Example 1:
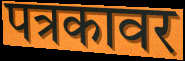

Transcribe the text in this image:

पत्रकावर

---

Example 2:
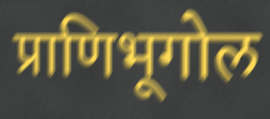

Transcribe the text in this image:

प्राणिभूगोल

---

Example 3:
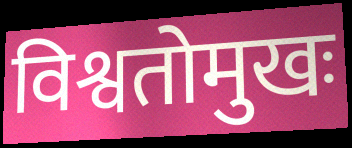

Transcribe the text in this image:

विश्वतोमुखः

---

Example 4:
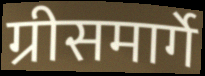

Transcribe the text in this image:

ग्रीसमार्गे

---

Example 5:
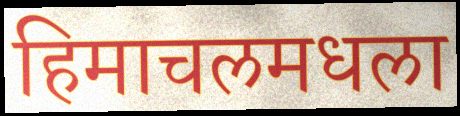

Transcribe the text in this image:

हिमाचलमधला